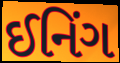
ઈનિંગ